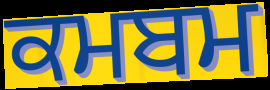
ਕਮਬਮ